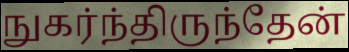
நுகர்ந்திருந்தேன்